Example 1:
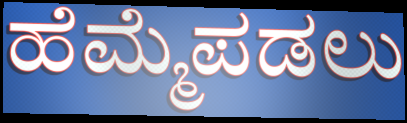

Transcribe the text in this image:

ಹೆಮ್ಮೆಪಡಲು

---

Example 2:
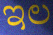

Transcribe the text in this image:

ಇಲ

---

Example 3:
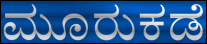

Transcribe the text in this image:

ಮೂರುಕಡೆ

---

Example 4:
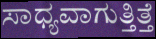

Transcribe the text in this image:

ಸಾಧ್ಯವಾಗುತ್ತಿತ್ತೆ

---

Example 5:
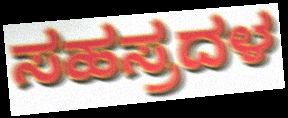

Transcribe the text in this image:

ಸಹಸ್ರದಳ